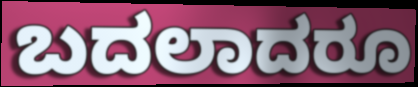
ಬದಲಾದರೂ